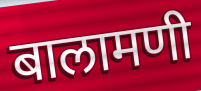
बालामणी